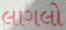
લાગલો